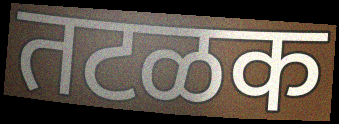
तटळक